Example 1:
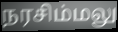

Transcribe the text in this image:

நரசிம்மலு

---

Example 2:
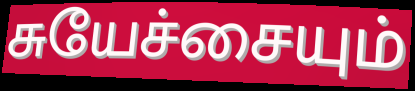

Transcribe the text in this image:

சுயேச்சையும்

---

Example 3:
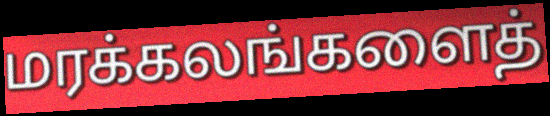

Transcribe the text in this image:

மரக்கலங்களைத்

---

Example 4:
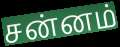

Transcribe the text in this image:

சன்னம்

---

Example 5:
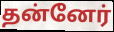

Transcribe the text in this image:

தன்னேர்